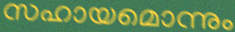
സഹായമൊന്നും